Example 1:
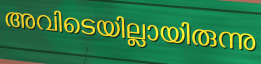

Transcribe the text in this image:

അവിടെയില്ലായിരുന്നു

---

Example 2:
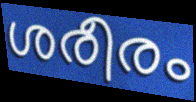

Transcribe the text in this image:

ശരീരം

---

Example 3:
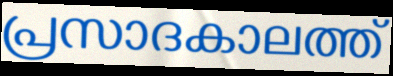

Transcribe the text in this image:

പ്രസാദകാലത്ത്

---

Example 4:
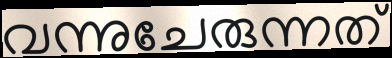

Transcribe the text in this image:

വന്നുചേരുന്നത്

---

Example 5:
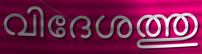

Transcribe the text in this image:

വിദേശത്തു